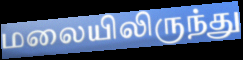
மலையிலிருந்து